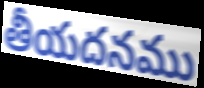
తీయదనము